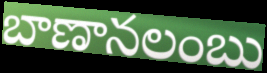
బాణానలంబు